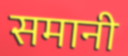
समानी